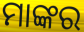
ମାଙ୍କର